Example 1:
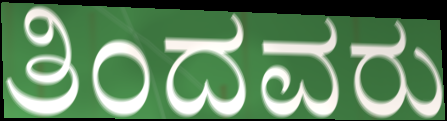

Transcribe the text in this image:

ತಿಂದವರು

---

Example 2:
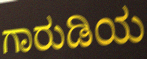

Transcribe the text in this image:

ಗಾರುಡಿಯ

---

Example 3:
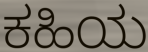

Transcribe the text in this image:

ಕಹಿಯ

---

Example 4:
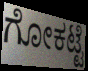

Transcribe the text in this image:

ಗೋಕಟ್ಟೆ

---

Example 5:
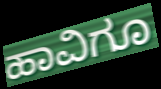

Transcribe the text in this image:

ಹಾವಿಗೂ